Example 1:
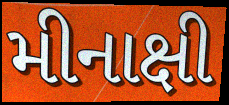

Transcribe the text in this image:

મીનાક્ષી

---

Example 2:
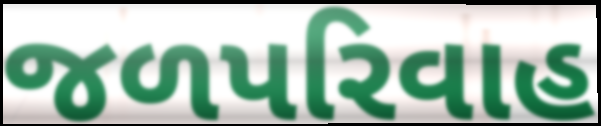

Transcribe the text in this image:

જળપરિવાહ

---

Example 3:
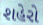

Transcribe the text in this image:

શહેરો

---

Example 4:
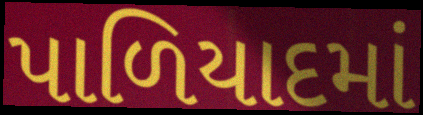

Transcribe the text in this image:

પાળિયાદમાં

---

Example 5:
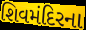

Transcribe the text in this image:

શિવમંદિરના